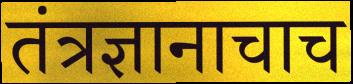
तंत्रज्ञानाचाच